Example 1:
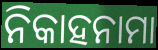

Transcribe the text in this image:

ନିକାହନାମା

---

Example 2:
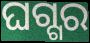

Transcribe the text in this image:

ଘଗ୍ଗର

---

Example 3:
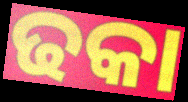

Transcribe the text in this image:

ଢକା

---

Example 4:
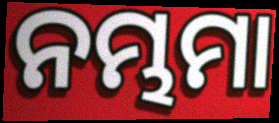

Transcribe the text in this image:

ନମ୍ଭମା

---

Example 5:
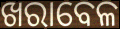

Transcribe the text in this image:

ଖରାବେଳ